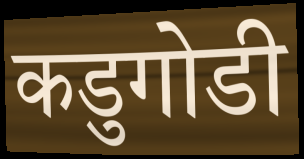
कडुगोडी